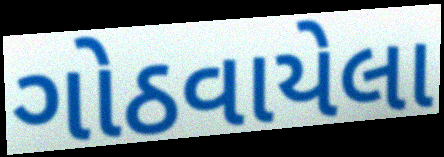
ગોઠવાયેલા